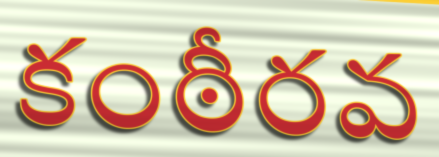
కంఠీరవ